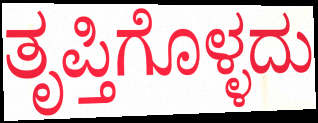
ತೃಪ್ತಿಗೊಳ್ಳದು